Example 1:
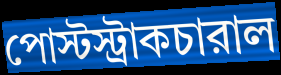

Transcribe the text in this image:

পোস্টস্ট্রাকচারাল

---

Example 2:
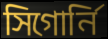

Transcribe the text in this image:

সিগোর্নি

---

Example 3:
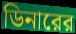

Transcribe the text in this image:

ডিনারের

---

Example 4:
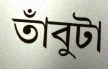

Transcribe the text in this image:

তাঁবুটা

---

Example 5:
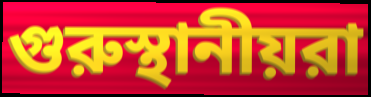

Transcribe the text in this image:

গুরুস্থানীয়রা